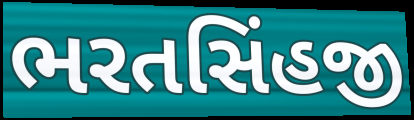
ભરતસિંહજી